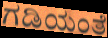
ಗಡಿಯಂತೆ